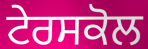
ਟੇਰਸਕੋਲ